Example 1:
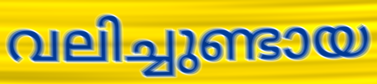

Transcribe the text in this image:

വലിച്ചുണ്ടായ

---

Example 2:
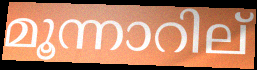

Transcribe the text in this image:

മൂന്നാറില്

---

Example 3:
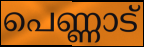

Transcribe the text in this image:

പെണ്ണാട്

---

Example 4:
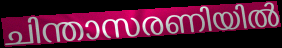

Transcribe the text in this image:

ചിന്താസരണിയിൽ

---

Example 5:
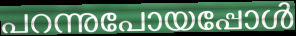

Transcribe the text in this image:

പറന്നുപോയപ്പോൾ